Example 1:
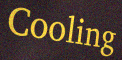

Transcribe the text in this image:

Cooling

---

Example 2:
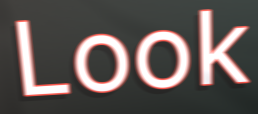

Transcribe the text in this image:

Look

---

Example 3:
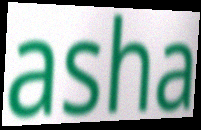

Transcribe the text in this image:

asha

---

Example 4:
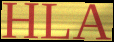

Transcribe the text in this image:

HLA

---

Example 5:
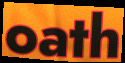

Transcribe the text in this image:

oath